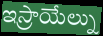
ఇస్రాయేల్ను